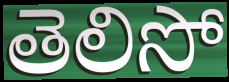
తెలిసో